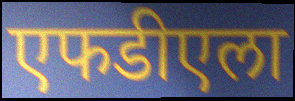
एफडीएला